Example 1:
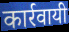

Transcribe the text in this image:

कार्रवायी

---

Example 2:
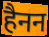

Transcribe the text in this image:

हैनन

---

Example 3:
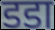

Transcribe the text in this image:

डडा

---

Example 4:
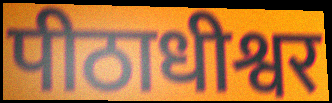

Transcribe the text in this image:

पीठाधीश्वर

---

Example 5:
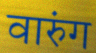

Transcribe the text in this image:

वारुंग